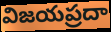
విజయప్రదా